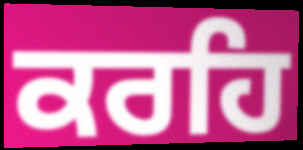
ਕਰਹਿ